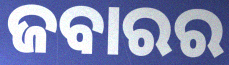
ଜବାରର